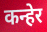
कन्हेर